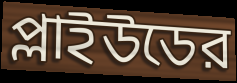
প্লাইউডের